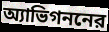
অ্যাভিগননের